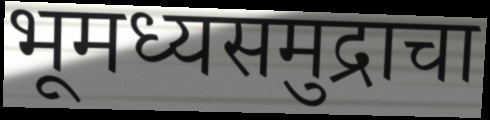
भूमध्यसमुद्राचा